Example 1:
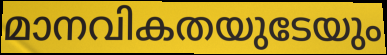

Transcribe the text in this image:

മാനവികതയുടേയും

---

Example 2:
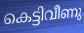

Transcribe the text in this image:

കെട്ടിവീണു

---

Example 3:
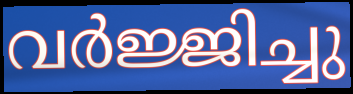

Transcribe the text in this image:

വർജ്ജിച്ചു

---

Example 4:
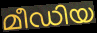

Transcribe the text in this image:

മീഡിയ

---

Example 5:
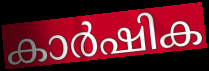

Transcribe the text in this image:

കാർഷിക